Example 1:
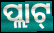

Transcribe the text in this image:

ପ୍ଲାଟ୍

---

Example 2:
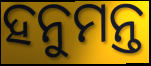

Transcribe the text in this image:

ହନୁମନ୍ତ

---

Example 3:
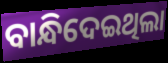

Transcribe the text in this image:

ବାନ୍ଧିଦେଇଥିଲା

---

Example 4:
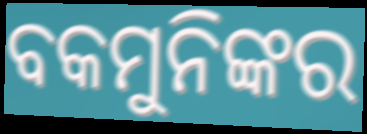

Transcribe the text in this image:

ବକମୁନିଙ୍କର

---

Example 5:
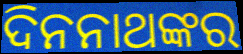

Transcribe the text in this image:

ଦିନନାଥଙ୍କର